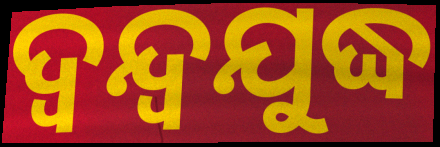
ଦ୍ୱନ୍ଦ୍ୱଯୁଦ୍ଧ